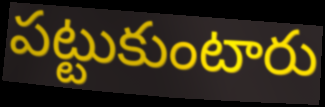
పట్టుకుంటారు